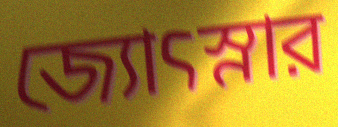
জ্যোৎস্নার